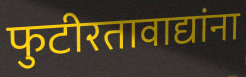
फुटीरतावाद्यांना